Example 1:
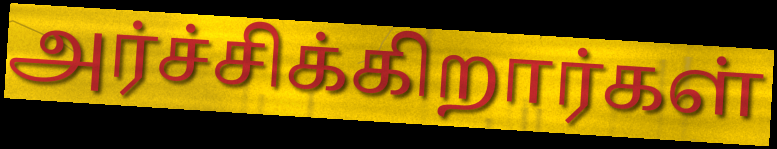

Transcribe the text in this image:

அர்ச்சிக்கிறார்கள்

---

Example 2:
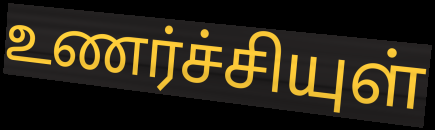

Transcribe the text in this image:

உணர்ச்சியுள்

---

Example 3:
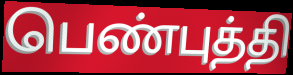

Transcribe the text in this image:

பெண்புத்தி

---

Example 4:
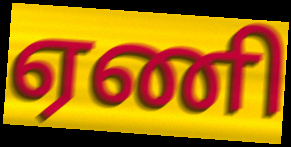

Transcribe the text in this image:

ஏணி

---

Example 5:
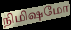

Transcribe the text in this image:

நிமிஷமோ